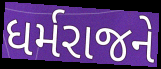
ધર્મરાજને